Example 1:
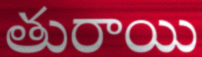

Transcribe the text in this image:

తురాయి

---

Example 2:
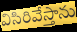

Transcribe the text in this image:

విసిరివేస్తాను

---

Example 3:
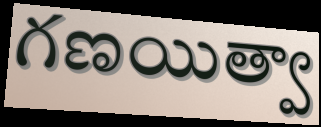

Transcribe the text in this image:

గణయిత్వా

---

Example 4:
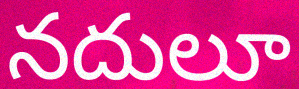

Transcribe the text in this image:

నదులూ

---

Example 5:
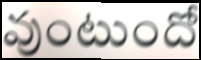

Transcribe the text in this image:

వుంటుందో